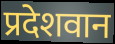
प्रदेशवान